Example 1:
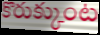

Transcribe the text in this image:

కొరుక్కుంట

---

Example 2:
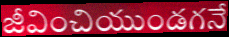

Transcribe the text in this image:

జీవించియుండగనే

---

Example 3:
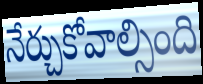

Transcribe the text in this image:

నేర్చుకోవాల్సింది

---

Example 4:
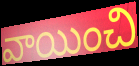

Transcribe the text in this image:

వాయించి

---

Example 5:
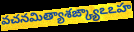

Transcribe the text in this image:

వచనమిత్యాశఙ్క్యాఽఽహ